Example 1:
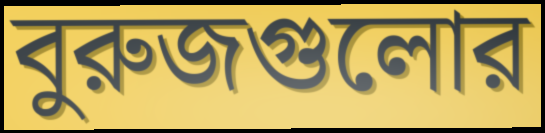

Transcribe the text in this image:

বুরুজগুলোর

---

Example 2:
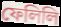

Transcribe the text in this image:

ফেলিলি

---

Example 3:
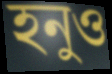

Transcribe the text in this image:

হনুও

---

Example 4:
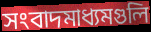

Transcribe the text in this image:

সংবাদমাধ্যমগুলি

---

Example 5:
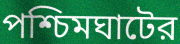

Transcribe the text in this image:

পশ্চিমঘাটের